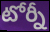
టోర్నీ